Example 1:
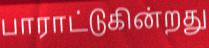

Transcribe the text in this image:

பாராட்டுகின்றது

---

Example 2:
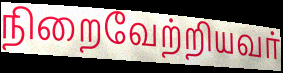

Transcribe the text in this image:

நிறைவேற்றியவர்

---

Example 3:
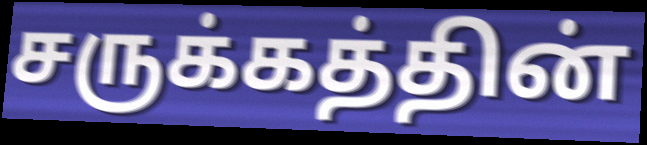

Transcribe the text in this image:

சருக்கத்தின்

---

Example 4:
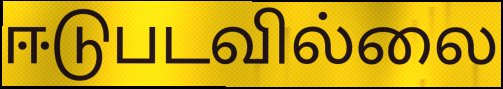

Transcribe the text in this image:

ஈடுபடவில்லை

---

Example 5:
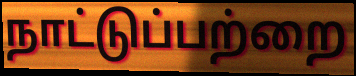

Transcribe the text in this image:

நாட்டுப்பற்றை